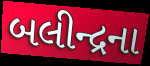
બલીન્દ્રના